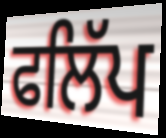
ਫਲਿੱਪ